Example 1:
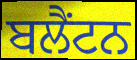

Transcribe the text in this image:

ਬਲੈਂਟਨ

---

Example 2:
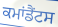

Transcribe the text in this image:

ਕਮਾਂਡੈਂਟਸ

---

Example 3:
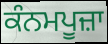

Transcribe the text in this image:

ਕੰਨਮਪੂਜ਼ਾ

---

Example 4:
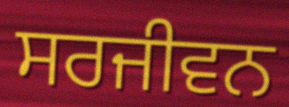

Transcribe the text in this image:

ਸਰਜੀਵਨ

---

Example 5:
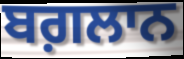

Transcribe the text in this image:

ਬਗ਼ਲਾਨ